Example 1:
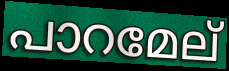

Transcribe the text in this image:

പാറമേല്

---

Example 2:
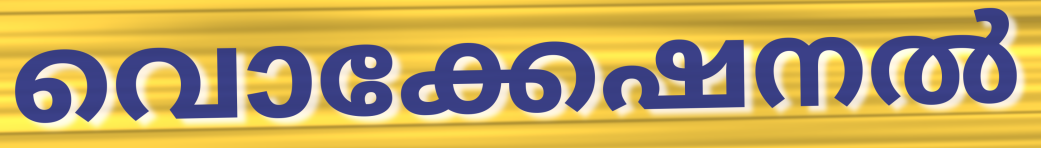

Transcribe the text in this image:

വൊക്കേഷനൽ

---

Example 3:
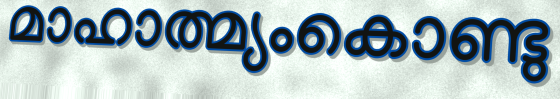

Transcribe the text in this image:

മാഹാത്മ്യംകൊണ്ടു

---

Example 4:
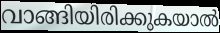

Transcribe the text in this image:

വാങ്ങിയിരിക്കുകയാൽ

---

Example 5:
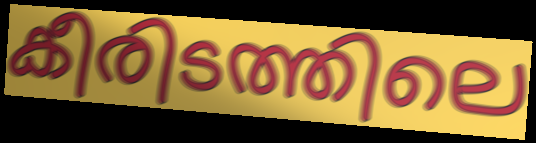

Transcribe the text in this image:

കീരിടത്തിലെ